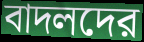
বাদলদের